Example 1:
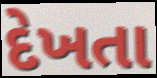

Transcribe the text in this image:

દેખતા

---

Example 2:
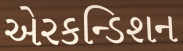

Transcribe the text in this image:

એરકન્ડિશન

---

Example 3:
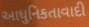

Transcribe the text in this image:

આધુનિકતાવાદી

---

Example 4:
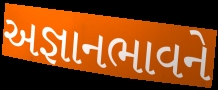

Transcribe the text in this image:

અજ્ઞાનભાવને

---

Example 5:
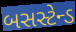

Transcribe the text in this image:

બસસ્ટેન્ડ